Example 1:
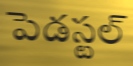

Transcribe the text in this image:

పెడస్టల్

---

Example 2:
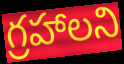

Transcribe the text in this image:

గ్రహాలని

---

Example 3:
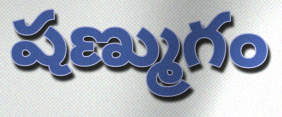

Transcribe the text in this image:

షణ్ముగం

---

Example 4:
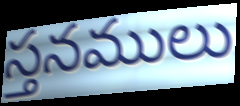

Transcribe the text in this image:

స్తనములు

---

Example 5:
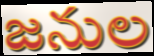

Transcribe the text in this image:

జనుల